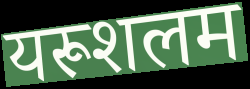
यरूशलम